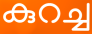
കുറച്ച